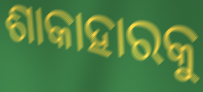
ଶାକାହାରକୁ